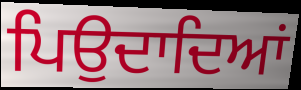
ਪਿਉਦਾਦਿਆਂ